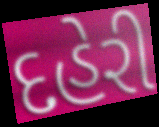
દહેરી